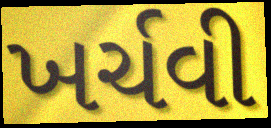
ખર્ચવી